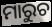
ମାରୁଚ